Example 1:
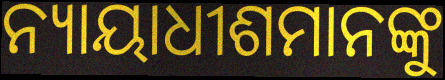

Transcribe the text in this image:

ନ୍ୟାୟାଧୀଶମାନଙ୍କୁ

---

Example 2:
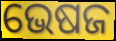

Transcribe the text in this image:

ଭେଷଜ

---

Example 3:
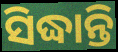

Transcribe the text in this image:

ସିଦ୍ଧାନ୍ତି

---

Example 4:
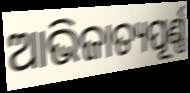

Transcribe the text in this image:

ଆଭିଜାତ୍ୟପୂର୍ଣ୍ଣ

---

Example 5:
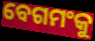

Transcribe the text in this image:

ବେଗମଂକୁ